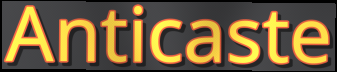
Anticaste